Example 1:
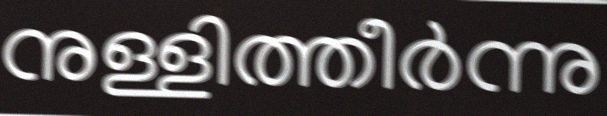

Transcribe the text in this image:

നുള്ളിത്തീർന്നു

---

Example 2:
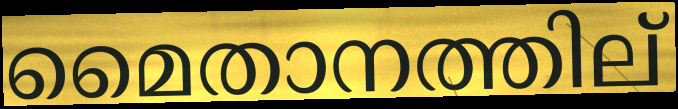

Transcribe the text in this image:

മൈതാനത്തില്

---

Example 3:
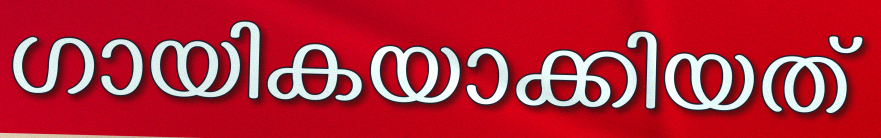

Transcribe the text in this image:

ഗായികയാക്കിയത്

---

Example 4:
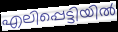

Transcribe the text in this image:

എലിപ്പെട്ടിയിൽ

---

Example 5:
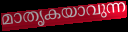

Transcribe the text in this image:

മാതൃകയാവുന്ന